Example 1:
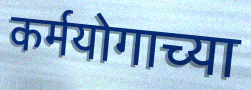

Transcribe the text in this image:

कर्मयोगाच्या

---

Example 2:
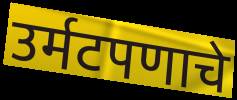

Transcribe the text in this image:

उर्मटपणाचे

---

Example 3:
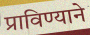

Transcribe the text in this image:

प्राविण्याने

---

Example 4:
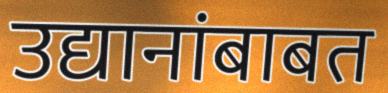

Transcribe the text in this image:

उद्यानांबाबत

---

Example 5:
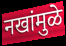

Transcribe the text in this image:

नखांमुळे